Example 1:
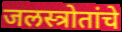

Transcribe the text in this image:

जलस्त्रोतांचे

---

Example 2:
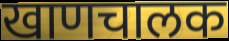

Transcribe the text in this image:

खाणचालक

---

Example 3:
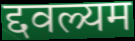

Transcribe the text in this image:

द्दवल्यम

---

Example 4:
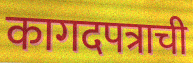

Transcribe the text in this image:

कागदपत्राची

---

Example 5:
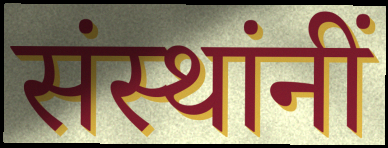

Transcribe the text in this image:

संस्थांनीं